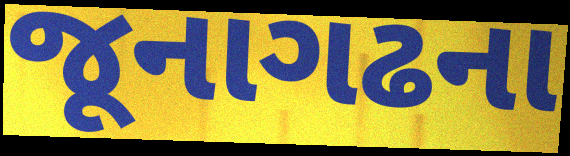
જૂનાગઢના